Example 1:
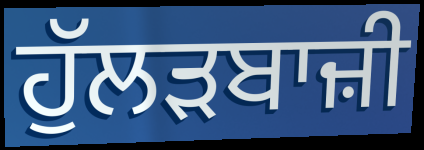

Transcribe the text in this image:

ਹੁੱਲੜਬਾਜ਼ੀ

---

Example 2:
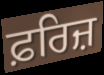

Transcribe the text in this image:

ਫ਼ਰਿਜ਼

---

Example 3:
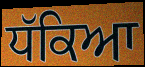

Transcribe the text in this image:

ਧੱਕਿਆ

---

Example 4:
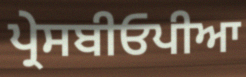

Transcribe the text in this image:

ਪ੍ਰੇਸਬੀਓਪੀਆ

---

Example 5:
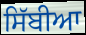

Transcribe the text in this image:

ਸਿੱਬੀਆ